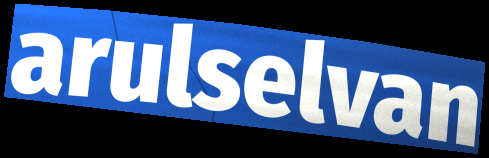
arulselvan